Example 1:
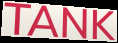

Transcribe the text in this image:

TANK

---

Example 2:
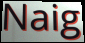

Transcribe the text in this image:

Naig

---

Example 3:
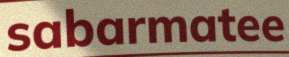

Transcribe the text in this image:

sabarmatee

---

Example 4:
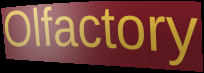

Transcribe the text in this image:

Olfactory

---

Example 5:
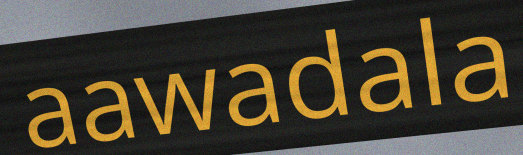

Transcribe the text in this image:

aawadala